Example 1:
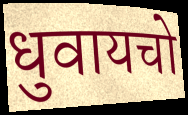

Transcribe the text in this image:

धुवायचो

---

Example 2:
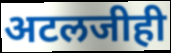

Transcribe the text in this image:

अटलजीही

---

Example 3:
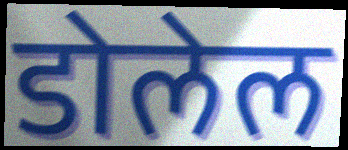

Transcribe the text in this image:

डोलेल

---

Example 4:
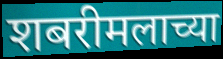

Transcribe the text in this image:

शबरीमलाच्या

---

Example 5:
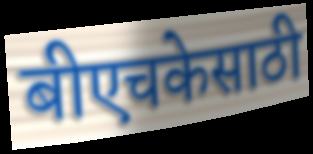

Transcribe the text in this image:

बीएचकेसाठी